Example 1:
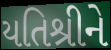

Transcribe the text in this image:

યતિશ્રીને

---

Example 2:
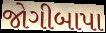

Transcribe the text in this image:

જોગીબાપા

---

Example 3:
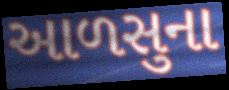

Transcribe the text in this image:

આળસુના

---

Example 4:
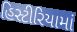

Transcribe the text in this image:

હિસ્ટીરિયામાં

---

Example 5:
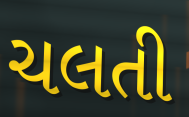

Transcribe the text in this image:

ચલતી